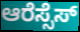
ಆರೆಸ್ಸೆಸ್